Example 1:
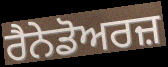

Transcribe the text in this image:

ਰੈਨੇਡੋਅਰਜ਼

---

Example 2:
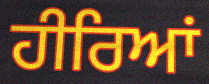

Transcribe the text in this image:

ਹੀਰਿਆਂ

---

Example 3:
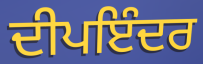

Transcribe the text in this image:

ਦੀਪਇੰਦਰ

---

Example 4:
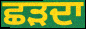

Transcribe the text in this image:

ਛੜਦਾ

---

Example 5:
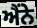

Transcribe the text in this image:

ਐਂਨੇ